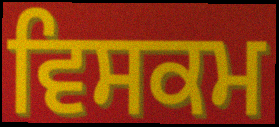
ਵਿਸਕਮ